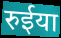
रुईया